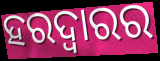
ହରଦ୍ୱାରର